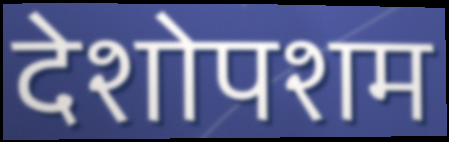
देशोपशम